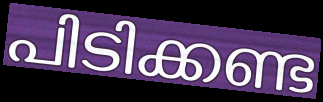
പിടിക്കണ്ട